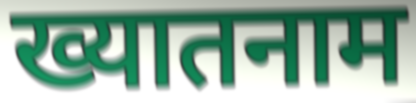
ख्यातनाम